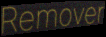
Remover